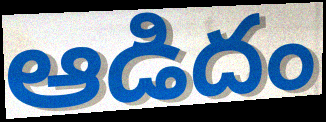
ఆడిదం